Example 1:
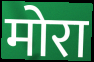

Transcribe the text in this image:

मोरा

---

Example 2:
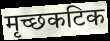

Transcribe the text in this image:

मृच्छकटिक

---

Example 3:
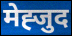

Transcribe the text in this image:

मेह्जुद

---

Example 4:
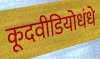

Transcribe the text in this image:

कूदवीडियोधंधे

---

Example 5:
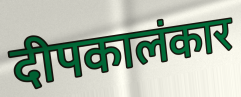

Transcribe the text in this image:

दीपकालंकार